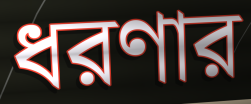
ধরণার